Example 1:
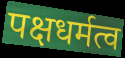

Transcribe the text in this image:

पक्षधर्मत्व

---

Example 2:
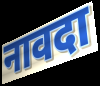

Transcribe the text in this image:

नावदा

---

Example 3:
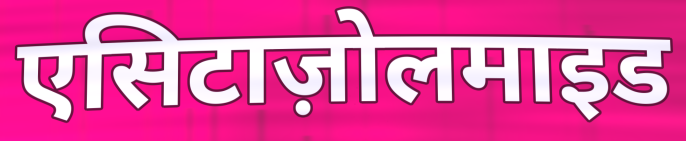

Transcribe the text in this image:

एसिटाज़ोलमाइड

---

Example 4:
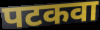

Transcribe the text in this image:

पटकवा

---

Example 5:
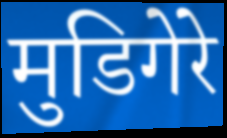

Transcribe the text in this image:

मुडिगेरे